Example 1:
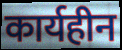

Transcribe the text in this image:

कार्यहीन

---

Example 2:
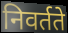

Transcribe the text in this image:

निवर्तते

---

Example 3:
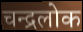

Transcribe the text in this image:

चन्द्रलोक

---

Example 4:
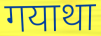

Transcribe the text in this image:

गयाथा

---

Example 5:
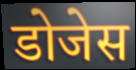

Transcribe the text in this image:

डोजेस